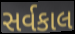
સર્વકાલ